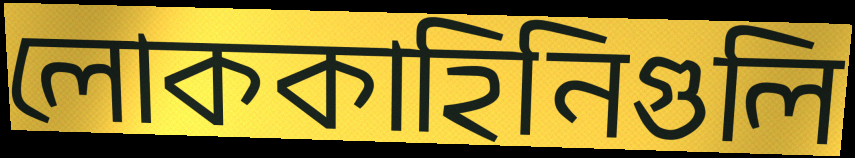
লোককাহিনিগুলি